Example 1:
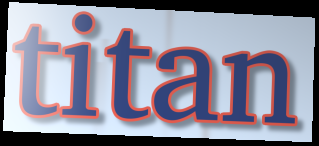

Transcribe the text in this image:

titan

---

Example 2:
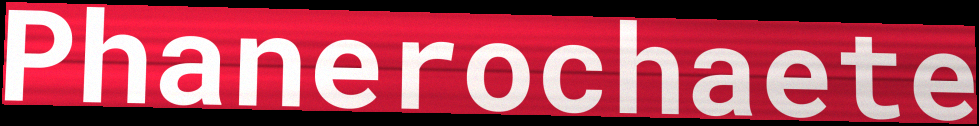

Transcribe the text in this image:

Phanerochaete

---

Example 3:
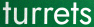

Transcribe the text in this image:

turrets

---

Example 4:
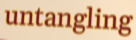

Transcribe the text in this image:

untangling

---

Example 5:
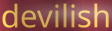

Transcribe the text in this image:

devilish